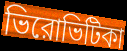
ভিরোভিটিকা